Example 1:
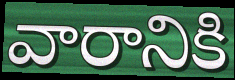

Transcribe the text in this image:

వారానికి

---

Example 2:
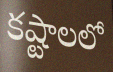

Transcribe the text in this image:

కష్టాలలో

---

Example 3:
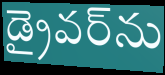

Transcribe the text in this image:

డ్రైవర్‌ను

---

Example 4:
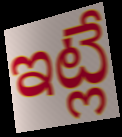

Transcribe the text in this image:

ఇట్లే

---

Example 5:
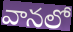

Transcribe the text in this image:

వానలో